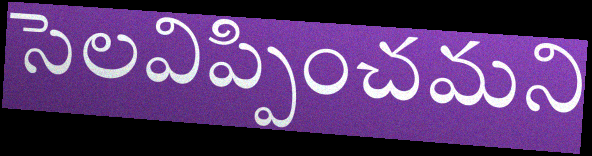
సెలవిప్పించమని